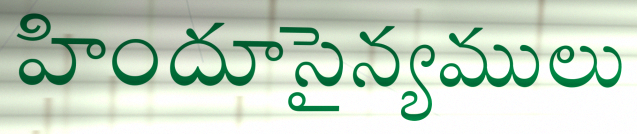
హిందూసైన్యములు